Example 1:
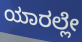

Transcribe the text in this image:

ಯಾರಲ್ಲೇ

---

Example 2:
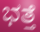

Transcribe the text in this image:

ಭತ್ತೆ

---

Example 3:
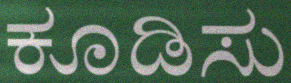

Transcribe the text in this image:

ಕೂಡಿಸು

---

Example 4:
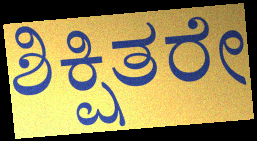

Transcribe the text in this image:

ಶಿಕ್ಷಿತರೇ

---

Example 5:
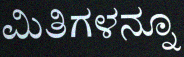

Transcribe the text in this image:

ಮಿತಿಗಳನ್ನೂ